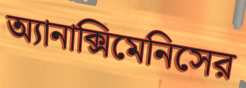
অ্যানাক্সিমেনিসের